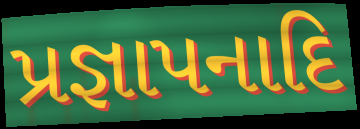
પ્રજ્ઞાપનાદિ